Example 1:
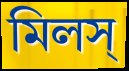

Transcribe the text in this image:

মিলস্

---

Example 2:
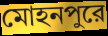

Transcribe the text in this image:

মোহনপুরে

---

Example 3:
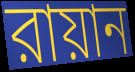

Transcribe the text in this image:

রায়ান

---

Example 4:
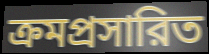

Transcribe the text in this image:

ক্রমপ্রসারিত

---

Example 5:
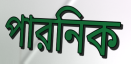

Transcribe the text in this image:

পারনিক